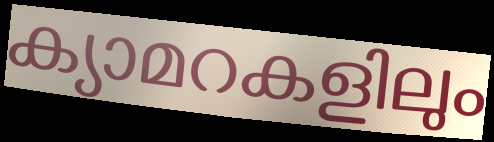
ക്യാമറകളിലും